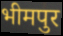
भीमपुर